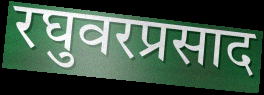
रघुवरप्रसाद